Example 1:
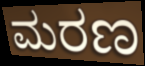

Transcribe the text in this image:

ಮರಣ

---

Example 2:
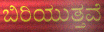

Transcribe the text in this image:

ಬಿರಿಯುತ್ತವೆ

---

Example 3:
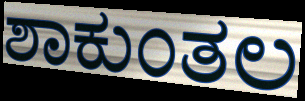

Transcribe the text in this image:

ಶಾಕುಂತಲ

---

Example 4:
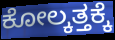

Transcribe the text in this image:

ಕೋಲ್ಕತ್ತಕ್ಕೆ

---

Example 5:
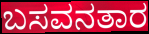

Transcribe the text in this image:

ಬಸವನತಾರ